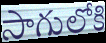
సాగులోకి